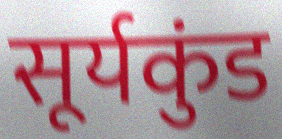
सूर्यकुंड